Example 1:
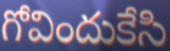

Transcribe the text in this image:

గోవిందుకేసి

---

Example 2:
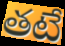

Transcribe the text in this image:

తటే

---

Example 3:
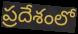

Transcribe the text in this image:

ప్రదేశంలో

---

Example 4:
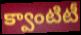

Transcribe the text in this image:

క్వాంటిటీ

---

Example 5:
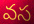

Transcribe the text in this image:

వస